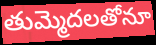
తుమ్మెదలతోనూ